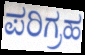
ಪರಿಗ್ರಹ